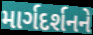
માર્ગદર્શનને